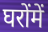
घरोंमें